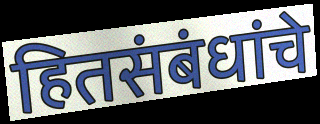
हितसंबंधांचे